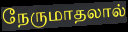
நேருமாதலால்